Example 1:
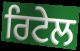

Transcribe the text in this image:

ਰਿਟੇਲ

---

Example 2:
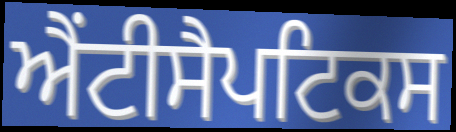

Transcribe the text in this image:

ਐਂਟੀਸੈਪਟਿਕਸ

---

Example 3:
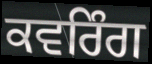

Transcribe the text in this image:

ਕਵਰਿੰਗ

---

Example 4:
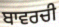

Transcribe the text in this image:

ਬਾਵਰਚੀ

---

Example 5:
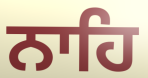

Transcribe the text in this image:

ਨਾਹਿ